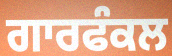
ਗਾਰਫੰਕਲ